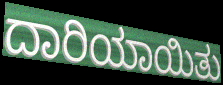
ದಾರಿಯಾಯಿತು